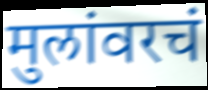
मुलांवरचं